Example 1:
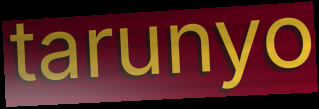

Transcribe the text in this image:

tarunyo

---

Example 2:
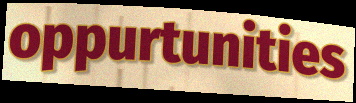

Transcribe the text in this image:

oppurtunities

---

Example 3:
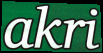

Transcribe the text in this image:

akri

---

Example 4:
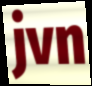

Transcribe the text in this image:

jvn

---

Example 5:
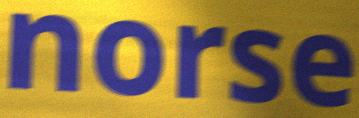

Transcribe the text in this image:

norse